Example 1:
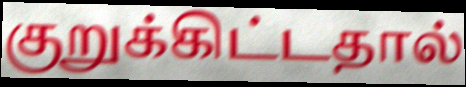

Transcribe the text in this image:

குறுக்கிட்டதால்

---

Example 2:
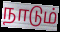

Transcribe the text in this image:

நாடும்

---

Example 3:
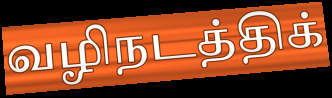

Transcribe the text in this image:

வழிநடத்திக்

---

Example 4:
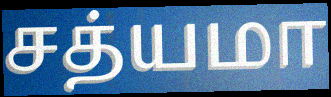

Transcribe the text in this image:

சத்யமா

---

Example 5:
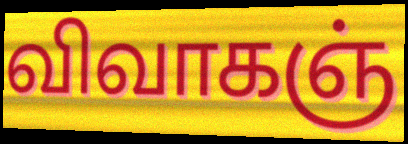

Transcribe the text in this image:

விவாகஞ்